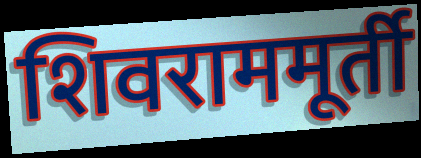
शिवराममूर्ती